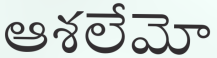
ఆశలేమో